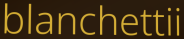
blanchettii